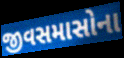
જીવસમાસોના